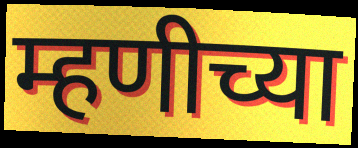
म्हणीच्या